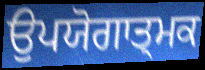
ਉਪਯੋਗਾਤ੍ਮਕ